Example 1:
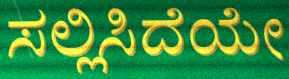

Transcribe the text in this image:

ಸಲ್ಲಿಸಿದೆಯೇ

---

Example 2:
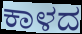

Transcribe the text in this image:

ಕಾಳದ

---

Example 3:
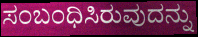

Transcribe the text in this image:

ಸಂಬಂಧಿಸಿರುವುದನ್ನು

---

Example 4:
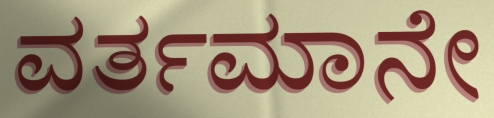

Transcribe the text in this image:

ವರ್ತಮಾನೇ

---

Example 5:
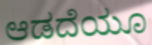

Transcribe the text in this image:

ಆಡದೆಯೂ